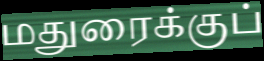
மதுரைக்குப்